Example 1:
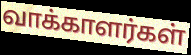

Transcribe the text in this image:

வாக்காளர்கள்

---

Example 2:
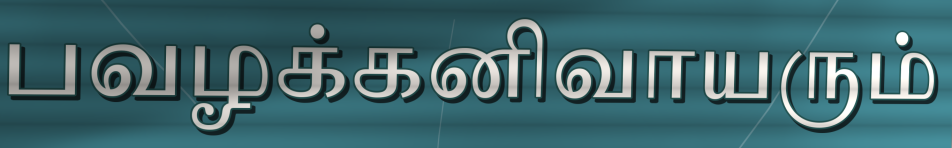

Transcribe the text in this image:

பவழக்கனிவாயரும்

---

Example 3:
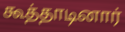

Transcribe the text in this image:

கூத்தாடினார்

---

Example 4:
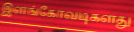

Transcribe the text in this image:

இளங்கோவடிகளது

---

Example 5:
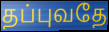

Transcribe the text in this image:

தப்புவதே